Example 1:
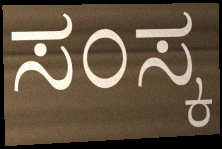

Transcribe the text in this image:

ಸಂಸ್ಕ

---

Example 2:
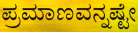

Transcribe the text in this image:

ಪ್ರಮಾಣವನ್ನಷ್ಟೇ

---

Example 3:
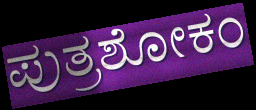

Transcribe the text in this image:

ಪುತ್ರಶೋಕಂ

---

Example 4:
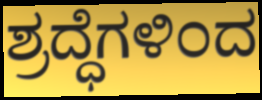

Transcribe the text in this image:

ಶ್ರದ್ಧೆಗಳಿಂದ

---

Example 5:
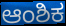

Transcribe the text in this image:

ಆಂಶಿಕ